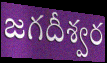
జగదీశ్వర